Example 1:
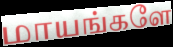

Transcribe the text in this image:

மாயங்களே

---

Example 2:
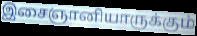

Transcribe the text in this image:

இசைஞானியாருக்கும்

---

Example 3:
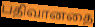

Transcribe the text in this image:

பதிவானதை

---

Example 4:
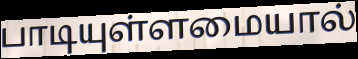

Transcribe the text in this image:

பாடியுள்ளமையால்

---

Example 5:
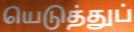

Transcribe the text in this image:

யெடுத்துப்